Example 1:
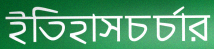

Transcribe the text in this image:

ইতিহাসচর্চার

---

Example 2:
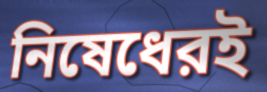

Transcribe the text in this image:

নিষেধেরই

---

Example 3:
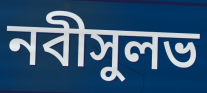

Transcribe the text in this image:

নবীসুলভ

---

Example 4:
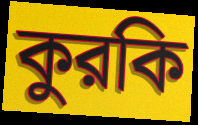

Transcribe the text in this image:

কুরকি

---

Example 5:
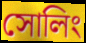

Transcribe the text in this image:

সোলিং